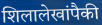
शिलालेखांपैकी